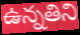
ఉన్నతిని